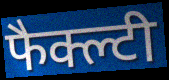
फैक्ल्टी